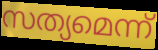
സത്യമെന്ന്